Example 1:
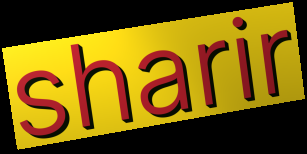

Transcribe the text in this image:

sharir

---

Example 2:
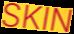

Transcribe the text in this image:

SKIN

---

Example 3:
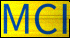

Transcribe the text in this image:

MCI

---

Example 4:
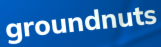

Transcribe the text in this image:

groundnuts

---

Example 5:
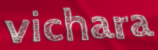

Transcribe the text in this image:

vichara